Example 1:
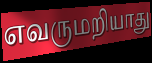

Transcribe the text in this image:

எவருமறியாது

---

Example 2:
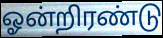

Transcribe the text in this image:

ஓன்றிரண்டு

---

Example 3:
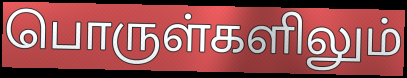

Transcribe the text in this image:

பொருள்களிலும்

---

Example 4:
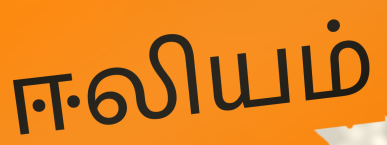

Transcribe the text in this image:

ஈலியம்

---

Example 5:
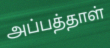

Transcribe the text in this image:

அப்பத்தாள்